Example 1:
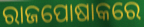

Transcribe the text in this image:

ରାଜପୋଷାକରେ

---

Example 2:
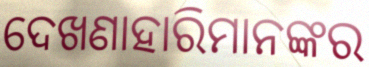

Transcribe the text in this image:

ଦେଖଣାହାରିମାନଙ୍କର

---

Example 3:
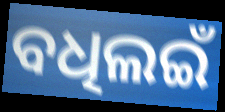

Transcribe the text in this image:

ବଧିଲଇଁ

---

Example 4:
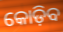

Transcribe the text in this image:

କୋଡ଼ିବ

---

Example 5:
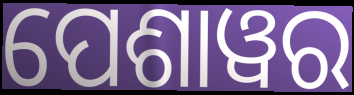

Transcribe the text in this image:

ପେଶାୱର